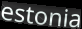
estonia